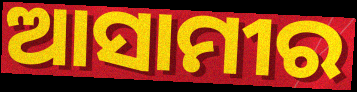
ଆସାମୀର